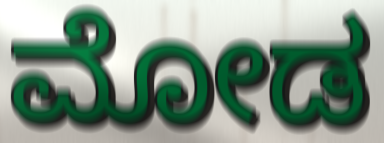
ಮೋಡ